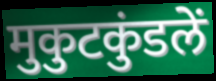
मुकुटकुंडलें